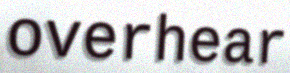
overhear